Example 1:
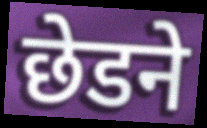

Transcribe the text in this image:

छेडने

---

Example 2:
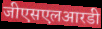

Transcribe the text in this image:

जीएसएलआरडी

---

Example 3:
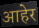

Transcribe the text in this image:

आहेर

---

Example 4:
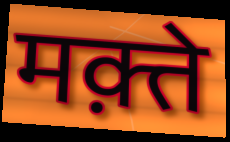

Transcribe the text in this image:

मक़्ते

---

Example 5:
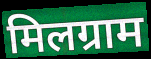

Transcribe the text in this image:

मिलग्राम